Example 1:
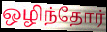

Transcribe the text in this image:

ஒழிந்தோர்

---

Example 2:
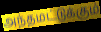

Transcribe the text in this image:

அந்தமட்டுக்கும்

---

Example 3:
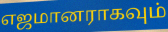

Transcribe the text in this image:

எஜமானராகவும்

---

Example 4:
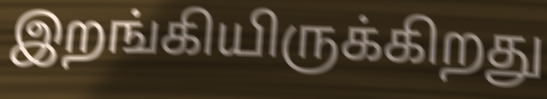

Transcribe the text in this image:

இறங்கியிருக்கிறது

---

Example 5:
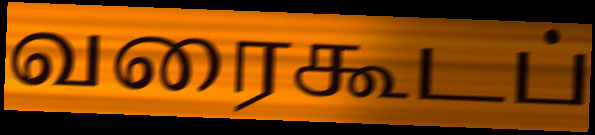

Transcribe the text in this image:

வரைகூடப்